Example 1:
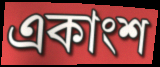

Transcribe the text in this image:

একাংশ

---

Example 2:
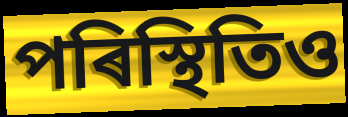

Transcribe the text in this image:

পৰিস্থিতিও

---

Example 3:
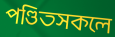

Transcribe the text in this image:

পণ্ডিতসকলে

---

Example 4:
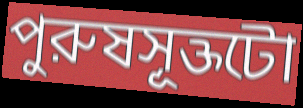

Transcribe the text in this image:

পুৰুষসূক্তটো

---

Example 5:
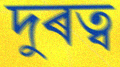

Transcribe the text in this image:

দুৰত্ব